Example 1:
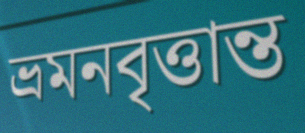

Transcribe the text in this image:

ভ্রমনবৃত্তান্ত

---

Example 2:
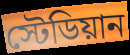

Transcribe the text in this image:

স্টেডিয়ান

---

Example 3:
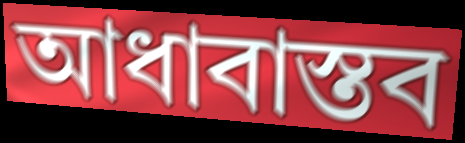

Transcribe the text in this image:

আধাবাস্তব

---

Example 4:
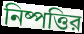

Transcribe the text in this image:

নিষ্পত্তির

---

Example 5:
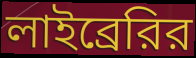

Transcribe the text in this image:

লাইব্রেরির